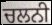
ਚਲਨੀ